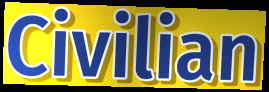
Civilian